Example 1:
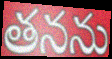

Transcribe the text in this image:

తనను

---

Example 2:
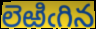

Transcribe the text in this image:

లెఱిఁగిన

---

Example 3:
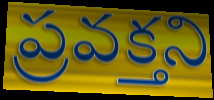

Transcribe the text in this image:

ప్రవక్తని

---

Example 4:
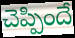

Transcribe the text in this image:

చెప్పిందే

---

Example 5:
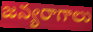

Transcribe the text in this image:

జన్యరాగాలు